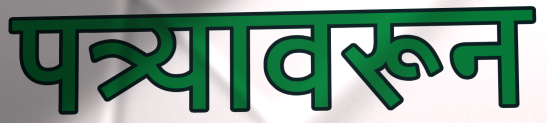
पत्र्यावरून